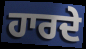
ਹਾਰਦੇ